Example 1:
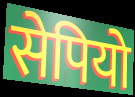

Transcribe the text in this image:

सेपियो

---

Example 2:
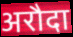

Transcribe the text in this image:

अरौदा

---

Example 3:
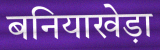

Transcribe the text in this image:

बनियाखेड़ा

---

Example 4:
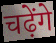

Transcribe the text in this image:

चढ़ेंगे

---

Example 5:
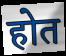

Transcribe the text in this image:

होत